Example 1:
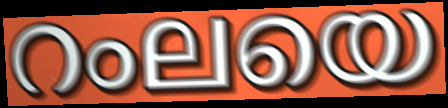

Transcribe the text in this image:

റംലയെ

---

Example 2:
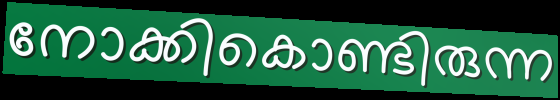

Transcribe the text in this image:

നോക്കികൊണ്ടിരുന്ന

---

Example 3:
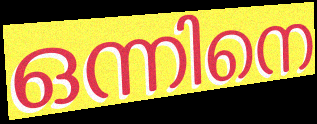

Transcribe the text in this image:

ഒന്നിനെ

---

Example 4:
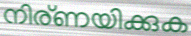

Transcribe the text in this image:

നിര്ണയിക്കുക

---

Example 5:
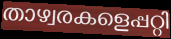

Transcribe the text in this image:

താഴ്വരകളെപ്പറ്റി